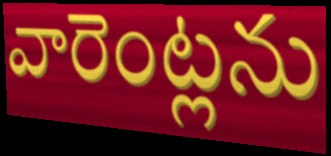
వారెంట్లను